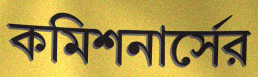
কমিশনার্সের